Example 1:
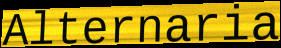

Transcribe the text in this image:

Alternaria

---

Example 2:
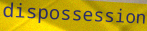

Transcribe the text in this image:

dispossession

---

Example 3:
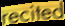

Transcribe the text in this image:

recited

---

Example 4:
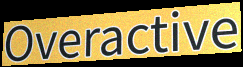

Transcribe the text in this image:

Overactive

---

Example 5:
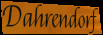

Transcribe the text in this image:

Dahrendorf